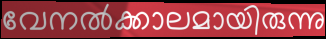
വേനൽക്കാലമായിരുന്നു